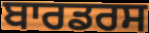
ਬਾਰਡਰਸ